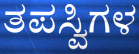
ತಪಸ್ವಿಗಳ